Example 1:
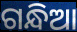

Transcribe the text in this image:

ଗନ୍ଧିଆ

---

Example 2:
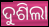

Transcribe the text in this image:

ଦୁଶିଲା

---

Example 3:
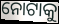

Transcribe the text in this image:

ନୋଟାକୁ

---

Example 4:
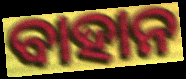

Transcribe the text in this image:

ବାହାନ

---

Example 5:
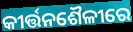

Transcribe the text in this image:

କୀର୍ତ୍ତନଶୈଳୀରେ